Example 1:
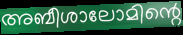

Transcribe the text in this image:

അബീശാലോമിന്റെ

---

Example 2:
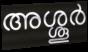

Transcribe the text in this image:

അശ്ശൂർ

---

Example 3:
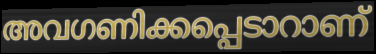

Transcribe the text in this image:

അവഗണിക്കപ്പെടാറാണ്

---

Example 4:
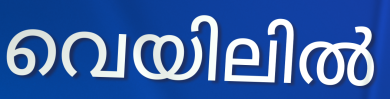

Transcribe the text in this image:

വെയിലിൽ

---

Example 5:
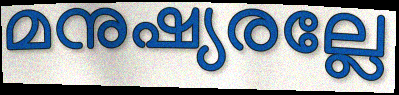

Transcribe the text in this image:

മനുഷ്യരല്ലേ